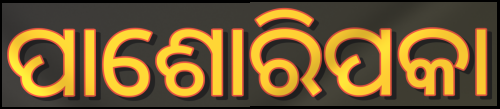
ପାଶୋରିପକା